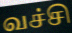
வச்சி